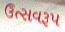
ઉત્સવરૂપ